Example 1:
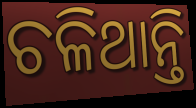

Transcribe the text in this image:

ଚଳିଥାନ୍ତି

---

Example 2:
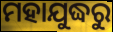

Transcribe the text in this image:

ମହାଯୁଦ୍ଧରୁ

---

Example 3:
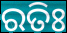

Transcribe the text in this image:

ରତିଃ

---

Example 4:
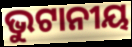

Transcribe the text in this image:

ଭୁଟାନୀୟ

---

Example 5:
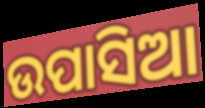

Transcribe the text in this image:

ଉପାସିଆ